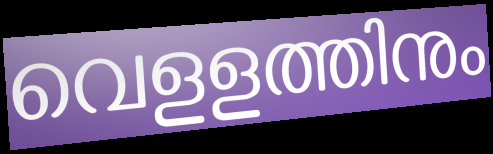
വെളളത്തിനും